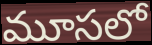
మూసలో